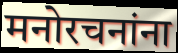
मनोरचनांना